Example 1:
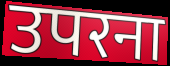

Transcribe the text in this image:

उपरना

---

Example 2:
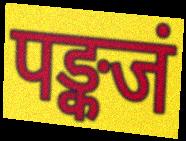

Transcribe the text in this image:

पङ्कजं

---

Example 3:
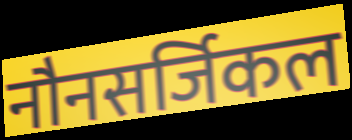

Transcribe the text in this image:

नौनसर्जिकल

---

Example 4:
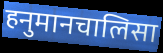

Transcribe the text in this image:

हनुमानचालिसा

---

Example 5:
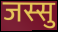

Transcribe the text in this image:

जस्सु